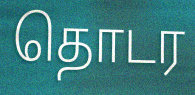
தொடர